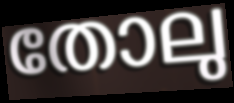
തോലു